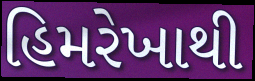
હિમરેખાથી